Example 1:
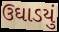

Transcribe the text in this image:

ઉઘાડયું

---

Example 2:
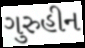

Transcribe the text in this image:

ગુરુહીન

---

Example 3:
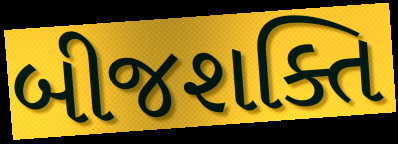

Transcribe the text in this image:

બીજશક્તિ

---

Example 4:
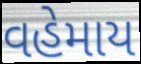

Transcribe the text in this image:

વહેમાય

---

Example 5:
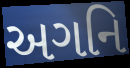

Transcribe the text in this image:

અગનિ